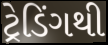
ટ્રેડિંગથી